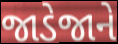
જાડેજાને